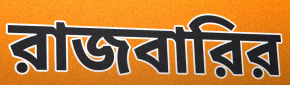
রাজবারির